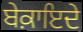
ਬੇਕ਼ਾਇਦੇ